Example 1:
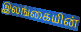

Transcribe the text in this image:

இலங்கையின்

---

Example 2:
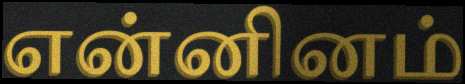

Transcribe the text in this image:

என்னினம்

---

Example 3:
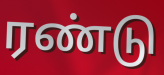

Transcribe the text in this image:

ரண்டு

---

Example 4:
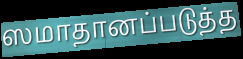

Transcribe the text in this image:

ஸமாதானப்படுத்த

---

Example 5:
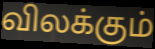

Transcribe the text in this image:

விலக்கும்